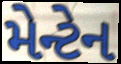
મેન્ટેન